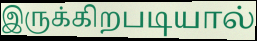
இருக்கிறபடியால்